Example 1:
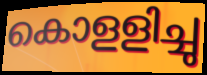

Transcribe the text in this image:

കൊളളിച്ചു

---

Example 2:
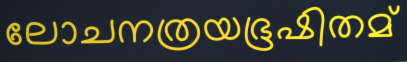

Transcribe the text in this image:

ലോചനത്രയഭൂഷിതമ്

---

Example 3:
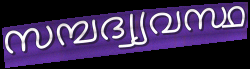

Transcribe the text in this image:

സമ്പദ്വ്യവസ്ഥ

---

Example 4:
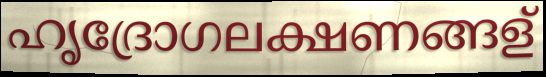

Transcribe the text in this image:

ഹൃദ്രോഗലക്ഷണങ്ങള്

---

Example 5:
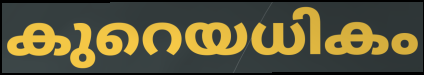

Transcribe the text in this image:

കുറെയധികം